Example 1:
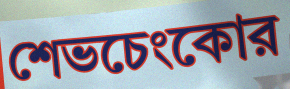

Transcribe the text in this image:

শেভচেংকোর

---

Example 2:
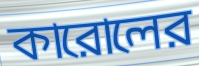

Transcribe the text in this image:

কারোলের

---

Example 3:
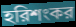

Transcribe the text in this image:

হরিশংকর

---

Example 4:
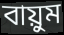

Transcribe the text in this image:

বায়ুম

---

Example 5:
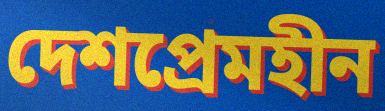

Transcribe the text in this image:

দেশপ্রেমহীন